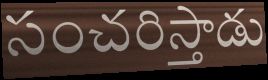
సంచరిస్తాడు